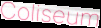
Coliseum